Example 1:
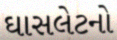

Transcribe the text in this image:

ઘાસલેટનો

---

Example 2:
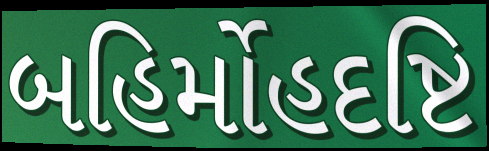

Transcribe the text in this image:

બહિર્મોહદષ્ટિ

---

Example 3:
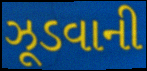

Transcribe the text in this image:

ઝૂડવાની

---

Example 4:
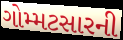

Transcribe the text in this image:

ગોમ્મટસારની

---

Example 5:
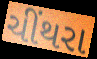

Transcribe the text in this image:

ચીંથરા